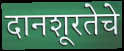
दानशूरतेचे